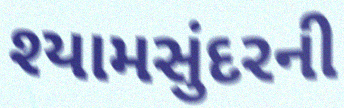
શ્યામસુંદરની